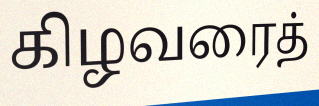
கிழவரைத்